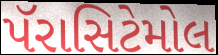
પૅરાસિટેમોલ